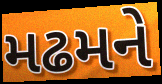
મઢમને